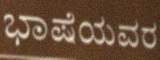
ಭಾಷೆಯವರ